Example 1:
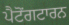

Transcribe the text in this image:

ਪੈਟੋਂਗਟਾਰਨ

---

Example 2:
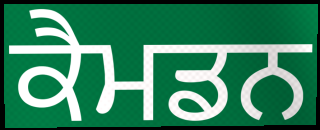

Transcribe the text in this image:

ਕੈਮਡਨ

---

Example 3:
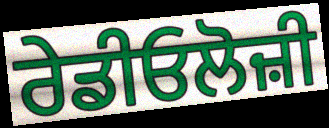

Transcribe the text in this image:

ਰੇਡੀਓਲੋਜ਼ੀ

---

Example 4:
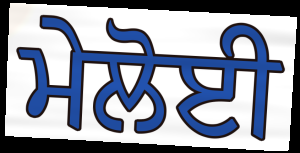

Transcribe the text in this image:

ਮੇਲੋਈ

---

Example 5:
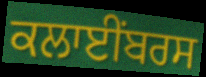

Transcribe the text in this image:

ਕਲਾਈਂਬਰਸ